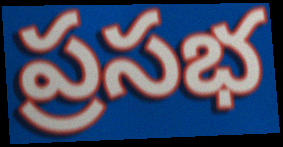
ప్రసభ